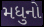
મધુનો